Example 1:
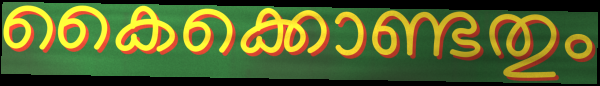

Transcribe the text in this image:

കൈക്കൊണ്ടതും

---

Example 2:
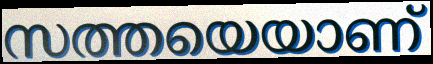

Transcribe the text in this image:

സത്തയെയാണ്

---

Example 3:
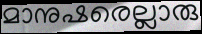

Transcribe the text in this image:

മാനുഷരെല്ലാരു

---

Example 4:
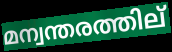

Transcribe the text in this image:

മന്വന്തരത്തില്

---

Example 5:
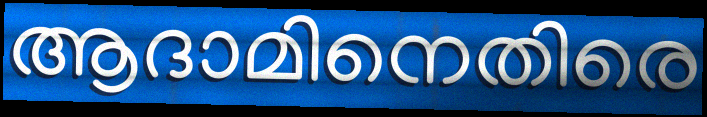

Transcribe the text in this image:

ആദാമിനെതിരെ